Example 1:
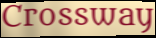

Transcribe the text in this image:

Crossway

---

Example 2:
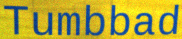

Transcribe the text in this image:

Tumbbad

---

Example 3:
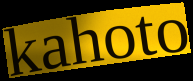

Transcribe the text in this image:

kahoto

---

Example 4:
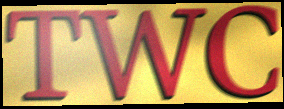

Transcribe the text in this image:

TWC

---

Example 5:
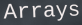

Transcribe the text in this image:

Arrays